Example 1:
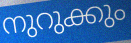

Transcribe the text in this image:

നുറുക്കും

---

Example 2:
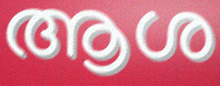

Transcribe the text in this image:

ആശ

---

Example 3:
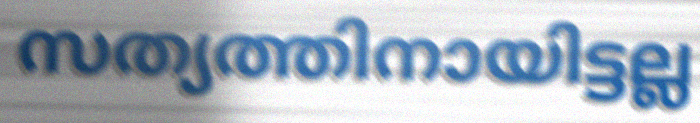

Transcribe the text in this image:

സത്യത്തിനായിട്ടല്ല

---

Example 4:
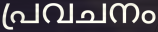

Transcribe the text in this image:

പ്രവചനം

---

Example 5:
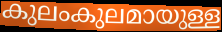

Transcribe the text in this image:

കുലംകുലമായുള്ള